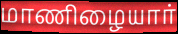
மாணிழையார்